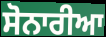
ਸੋਨਾਰੀਆ